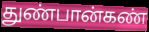
துண்பான்கண்